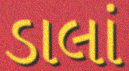
ડાલાં